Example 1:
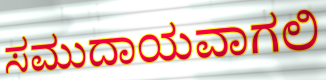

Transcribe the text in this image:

ಸಮುದಾಯವಾಗಲಿ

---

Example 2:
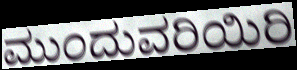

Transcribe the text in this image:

ಮುಂದುವರಿಯಿರಿ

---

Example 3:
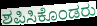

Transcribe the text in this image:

ಶಪಿಸಿಕೊಂಡರು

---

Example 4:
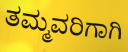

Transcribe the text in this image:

ತಮ್ಮವರಿಗಾಗಿ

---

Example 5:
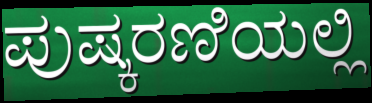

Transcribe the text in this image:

ಪುಷ್ಕರಣಿಯಲ್ಲಿ